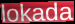
lokada